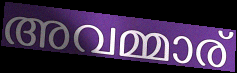
അവമ്മാര്